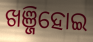
ଖଞ୍ଜିହୋଇ